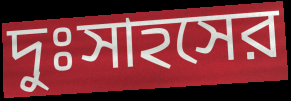
দুঃসাহসের